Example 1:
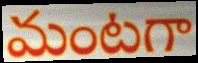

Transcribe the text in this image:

మంటగా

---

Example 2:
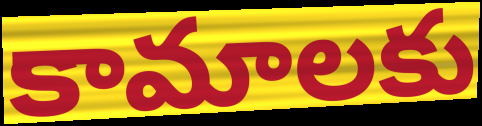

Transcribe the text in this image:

కామాలకు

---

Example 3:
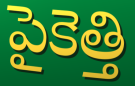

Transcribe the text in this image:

పైకెత్తి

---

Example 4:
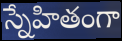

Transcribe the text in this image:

స్నేహితంగా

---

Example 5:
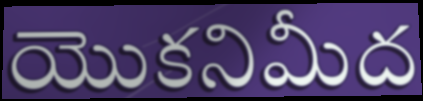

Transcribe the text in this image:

యొకనిమీద